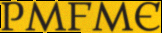
PMFME